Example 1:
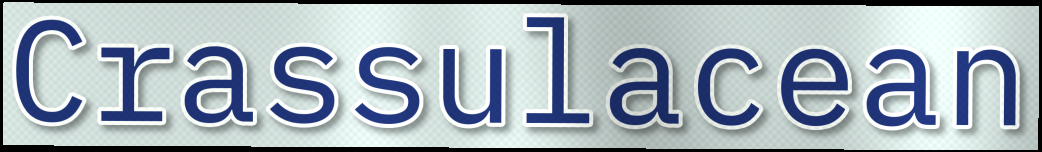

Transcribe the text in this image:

Crassulacean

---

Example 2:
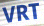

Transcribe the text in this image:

VRT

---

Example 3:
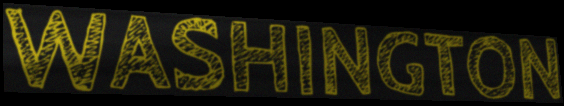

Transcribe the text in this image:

WASHINGTON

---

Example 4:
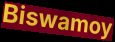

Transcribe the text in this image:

Biswamoy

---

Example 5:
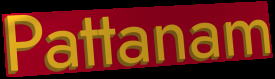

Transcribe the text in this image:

Pattanam